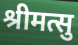
श्रीमत्सु